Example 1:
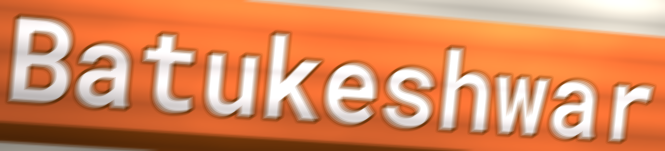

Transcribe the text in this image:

Batukeshwar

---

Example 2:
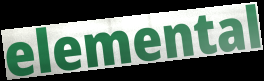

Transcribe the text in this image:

elemental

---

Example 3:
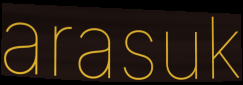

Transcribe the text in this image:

arasuk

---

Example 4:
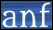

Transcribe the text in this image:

anf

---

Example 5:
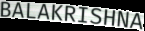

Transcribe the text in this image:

BALAKRISHNA